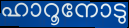
ഹാറൂനോടു